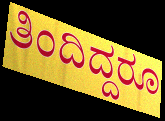
ತಿಂದಿದ್ದರೂ